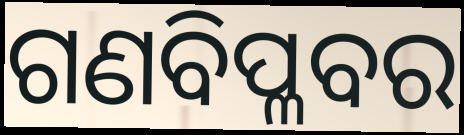
ଗଣବିପ୍ଳବର